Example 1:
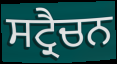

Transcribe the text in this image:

ਸਟ੍ਰੈਚਨ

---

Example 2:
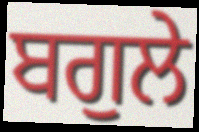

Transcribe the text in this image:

ਬਗੁਲੇ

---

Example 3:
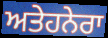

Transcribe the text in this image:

ਅਤੇਹਨੇਰਾ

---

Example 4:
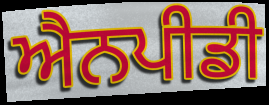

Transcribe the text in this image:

ਐਨਪੀਡੀ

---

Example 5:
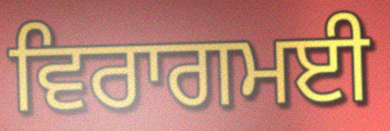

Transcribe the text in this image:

ਵਿਰਾਗਮਈ